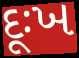
દૂઃખ